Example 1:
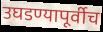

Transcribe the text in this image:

उघडण्यापूर्वीच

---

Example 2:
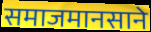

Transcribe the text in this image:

समाजमानसाने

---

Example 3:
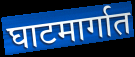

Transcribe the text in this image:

घाटमार्गात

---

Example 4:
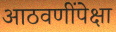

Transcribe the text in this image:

आठवणींपेक्षा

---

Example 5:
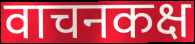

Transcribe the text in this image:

वाचनकक्ष